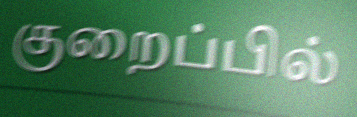
குறைப்பில்